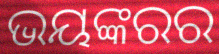
ଭୟଙ୍କରର